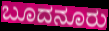
ಬೂದನೂರು